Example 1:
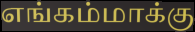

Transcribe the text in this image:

எங்கம்மாக்கு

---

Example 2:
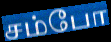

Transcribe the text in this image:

சம்போ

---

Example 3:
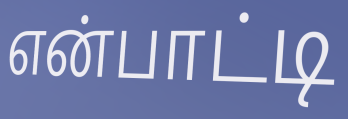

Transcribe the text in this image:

என்பாட்டி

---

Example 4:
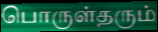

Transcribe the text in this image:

பொருள்தரும்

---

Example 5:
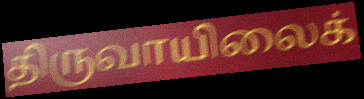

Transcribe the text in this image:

திருவாயிலைக்